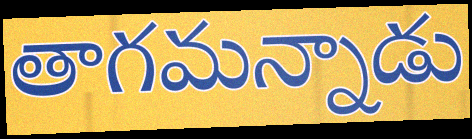
తాగమన్నాడు